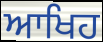
ਆਖਿਹ